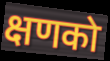
क्षणको